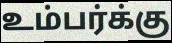
உம்பர்க்கு